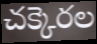
చక్కెరల